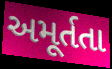
અમૂર્તતા